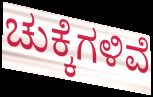
ಚುಕ್ಕೆಗಳಿವೆ